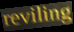
reviling